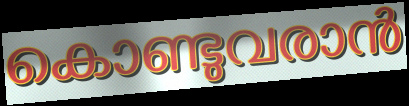
കൊണ്ടുവരാൻ